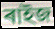
ৰাইজ